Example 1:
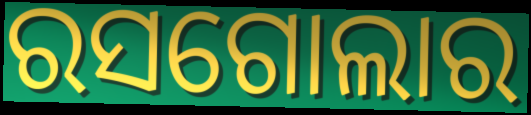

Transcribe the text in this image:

ରସଗୋଲାର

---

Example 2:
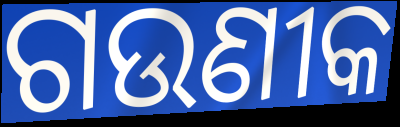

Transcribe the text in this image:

ଗଉଣୀକ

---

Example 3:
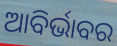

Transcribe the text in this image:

ଆବିର୍ଭାବର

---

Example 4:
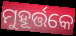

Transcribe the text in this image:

ମୁହୂର୍ତ୍ତକେ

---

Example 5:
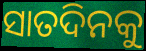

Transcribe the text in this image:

ସାତଦିନକୁ